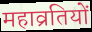
महाव्रतियों